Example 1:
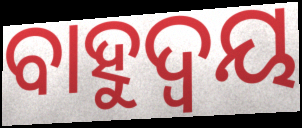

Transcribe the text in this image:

ବାହୁଦ୍ୱୟ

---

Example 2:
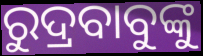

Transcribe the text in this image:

ରୁଦ୍ରବାବୁଙ୍କୁ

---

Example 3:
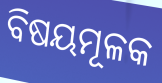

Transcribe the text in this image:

ବିଷୟମୂଳକ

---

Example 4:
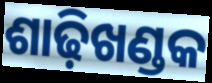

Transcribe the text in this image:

ଶାଢ଼ିଖଣ୍ଡକ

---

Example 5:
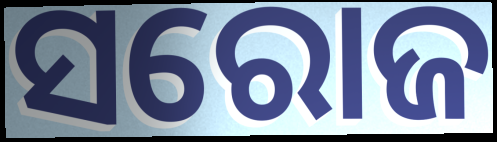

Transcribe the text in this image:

ସରୋଜ